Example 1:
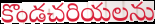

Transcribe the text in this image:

కొండచరియలను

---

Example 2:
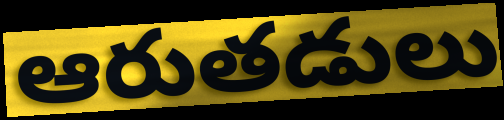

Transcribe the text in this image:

ఆరుతడులు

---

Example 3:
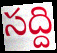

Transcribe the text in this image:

సద్ది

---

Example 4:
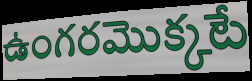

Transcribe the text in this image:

ఉంగరమొక్కటే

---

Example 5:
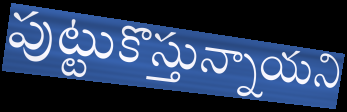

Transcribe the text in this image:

పుట్టుకొస్తున్నాయని